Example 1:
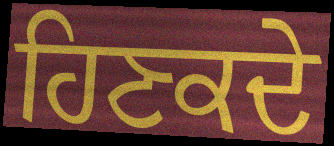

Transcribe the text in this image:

ਹਿਣਕਦੇ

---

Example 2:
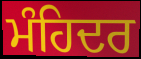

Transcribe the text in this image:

ਮੰਹਿਦਰ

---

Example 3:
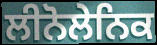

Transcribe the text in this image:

ਲੀਨੋਲੇਨਿਕ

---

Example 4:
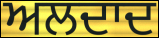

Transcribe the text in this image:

ਅਲਦਾਦ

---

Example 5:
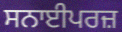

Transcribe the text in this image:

ਸਨਾਈਪਰਜ਼